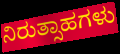
ನಿರುತ್ಸಾಹಗಳು